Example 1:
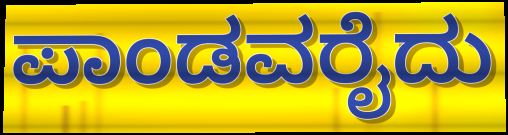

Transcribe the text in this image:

ಪಾಂಡವರೈದು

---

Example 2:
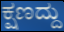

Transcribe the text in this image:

ಕ್ಷಣದ್ದು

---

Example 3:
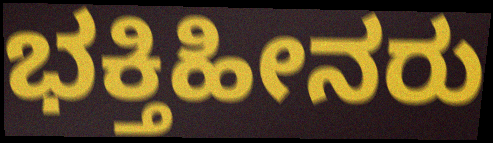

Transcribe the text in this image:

ಭಕ್ತಿಹೀನರು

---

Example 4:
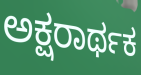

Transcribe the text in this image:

ಅಕ್ಷರಾರ್ಥಕ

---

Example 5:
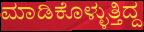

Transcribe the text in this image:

ಮಾಡಿಕೊಳ್ಳುತ್ತಿದ್ದ